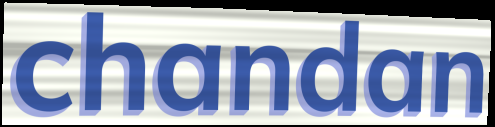
chandan